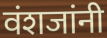
वंशजांनी